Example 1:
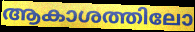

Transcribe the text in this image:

ആകാശത്തിലോ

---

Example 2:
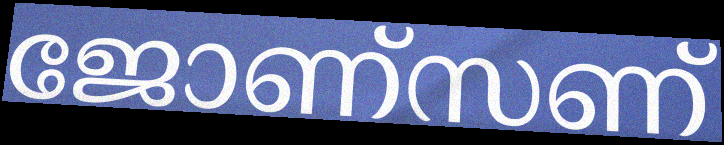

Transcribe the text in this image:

ജോണ്സണ്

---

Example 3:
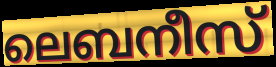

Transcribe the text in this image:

ലെബനീസ്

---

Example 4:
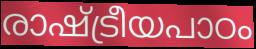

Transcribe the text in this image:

രാഷ്ട്രീയപാഠം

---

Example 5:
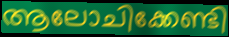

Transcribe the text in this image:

ആലോചിക്കേണ്ടി